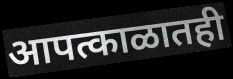
आपत्काळातही